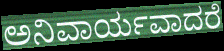
ಅನಿವಾರ್ಯವಾದರೆ